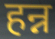
हन्न